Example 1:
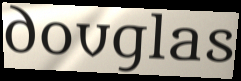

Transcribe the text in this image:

douglas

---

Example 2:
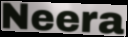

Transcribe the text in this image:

Neera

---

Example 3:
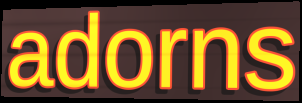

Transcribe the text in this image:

adorns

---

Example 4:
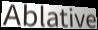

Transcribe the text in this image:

Ablative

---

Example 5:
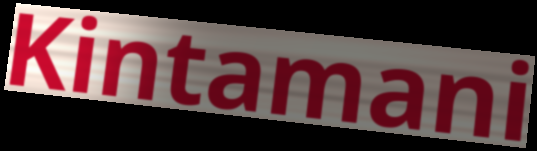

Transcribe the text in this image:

Kintamani